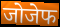
जोजेफ